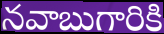
నవాబుగారికి